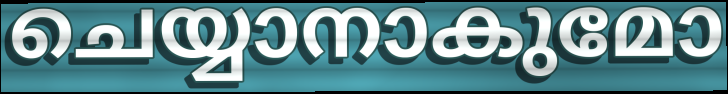
ചെയ്യാനാകുമോ